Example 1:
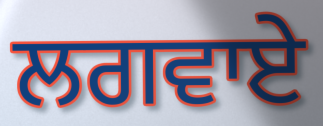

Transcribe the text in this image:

ਲਗਵਾਏ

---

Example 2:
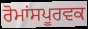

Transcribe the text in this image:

ਰੋਮਾਂਸਪੂਰਵਕ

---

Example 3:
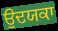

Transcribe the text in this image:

ਉਦਯਕਾ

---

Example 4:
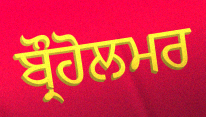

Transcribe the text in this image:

ਬ੍ਰੌਹੋਲਮਰ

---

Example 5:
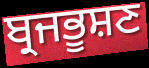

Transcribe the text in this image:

ਬ੍ਰਜਭੂਸ਼ਣ